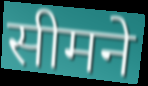
सीमने